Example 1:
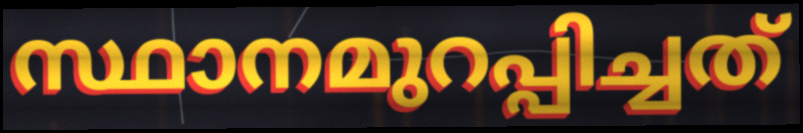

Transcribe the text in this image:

സ്ഥാനമുറപ്പിച്ചത്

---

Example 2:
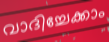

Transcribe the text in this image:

വാദിച്ചേക്കാം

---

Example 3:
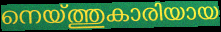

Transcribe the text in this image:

നെയ്ത്തുകാരിയായ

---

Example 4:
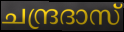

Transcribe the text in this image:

ചന്ദ്രദാസ്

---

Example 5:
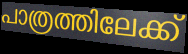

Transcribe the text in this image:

പാത്രത്തിലേക്ക്